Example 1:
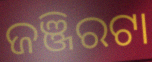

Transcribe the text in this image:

ଜଞ୍ଜିରଟା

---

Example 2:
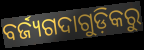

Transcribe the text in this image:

ବର୍ଜ୍ୟଗଦାଗୁଡ଼ିକରୁ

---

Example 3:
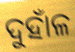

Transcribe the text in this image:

ଦୁହାଁଳ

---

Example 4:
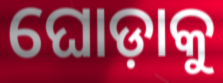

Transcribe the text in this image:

ଘୋଡ଼ାକୁ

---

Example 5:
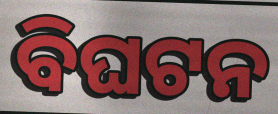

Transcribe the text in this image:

ବିଘଟନ